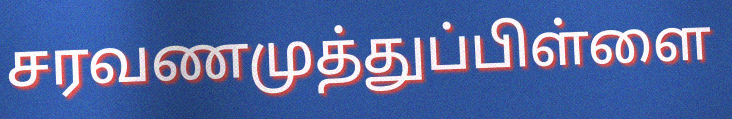
சரவணமுத்துப்பிள்ளை